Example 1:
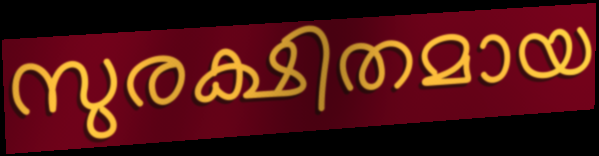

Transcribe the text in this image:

സുരക്ഷിതമായ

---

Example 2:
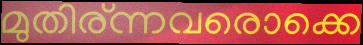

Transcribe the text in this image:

മുതിര്ന്നവരൊക്കെ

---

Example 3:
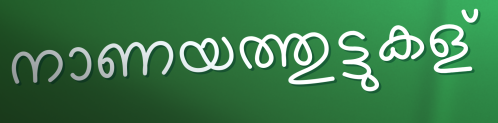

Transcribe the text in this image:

നാണയത്തുട്ടുകള്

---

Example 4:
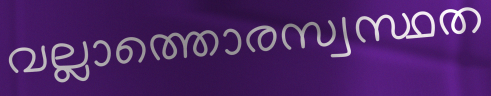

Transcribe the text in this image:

വല്ലാത്തൊരസ്വസ്ഥത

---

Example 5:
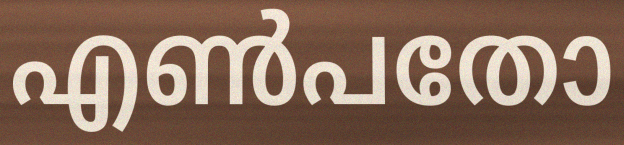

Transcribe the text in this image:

എൺപതോ